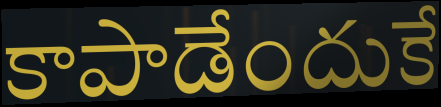
కాపాడేందుకే